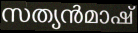
സത്യൻമാഷ്